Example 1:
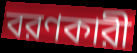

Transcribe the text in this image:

বরণকারী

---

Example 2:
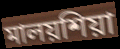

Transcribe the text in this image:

মালয়শিয়া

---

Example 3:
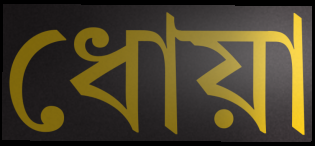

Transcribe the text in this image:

ধোয়া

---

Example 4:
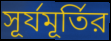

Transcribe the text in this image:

সূর্যমূর্তির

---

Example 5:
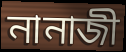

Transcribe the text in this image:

নানাজী